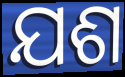
ଯଶ